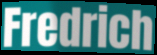
Fredrich